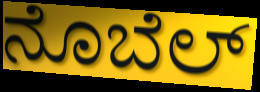
ನೊಬೆಲ್